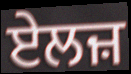
ਏਲਜ਼